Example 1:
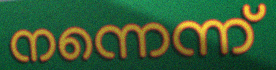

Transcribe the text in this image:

നന്നെന്ന്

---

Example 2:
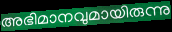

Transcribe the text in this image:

അഭിമാനവുമായിരുന്നു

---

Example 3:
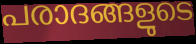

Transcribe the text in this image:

പരാദങ്ങളുടെ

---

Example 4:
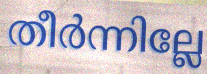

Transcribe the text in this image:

തീർന്നില്ലേ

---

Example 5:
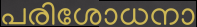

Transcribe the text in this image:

പരിശോധനാ